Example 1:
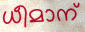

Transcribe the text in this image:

ധീമാന്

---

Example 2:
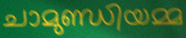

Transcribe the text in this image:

ചാമുണ്ഡിയമ്മ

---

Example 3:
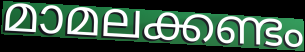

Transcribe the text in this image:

മാമലക്കണ്ടം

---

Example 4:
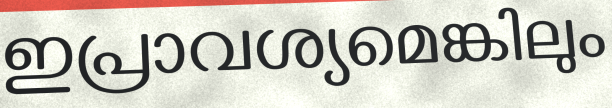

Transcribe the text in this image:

ഇപ്രാവശ്യമെങ്കിലും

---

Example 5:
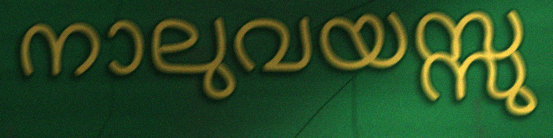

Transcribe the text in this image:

നാലുവയസ്സു